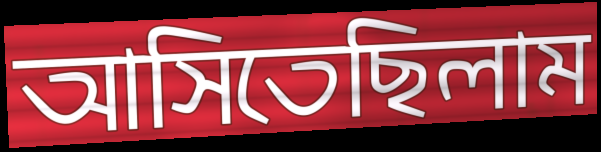
আসিতেছিলাম